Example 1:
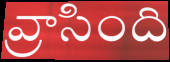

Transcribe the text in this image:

వ్రాసింది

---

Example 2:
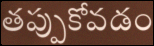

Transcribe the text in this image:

తప్పుకోవడం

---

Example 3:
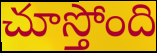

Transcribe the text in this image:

చూస్తోంది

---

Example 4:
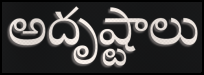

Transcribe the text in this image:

అదృష్టాలు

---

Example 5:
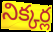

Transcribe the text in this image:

నిక్కర్ల